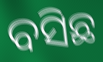
ବସିଛ